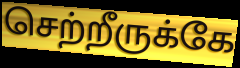
செற்றீருக்கே